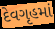
દેવગૃહમાં